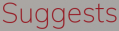
Suggests